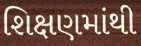
શિક્ષણમાંથી